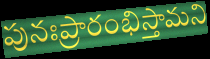
పునఃప్రారంభిస్తామని